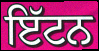
ਇੱਟਨ